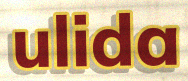
ulida